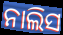
ନାଲିସ